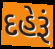
દહેરૂં